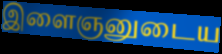
இளைஞனுடைய